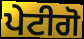
ਪੇਟੀਗੋ